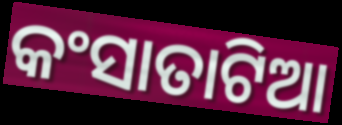
କଂସାତାଟିଆ